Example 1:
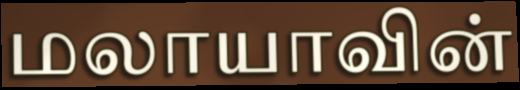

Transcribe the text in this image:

மலாயாவின்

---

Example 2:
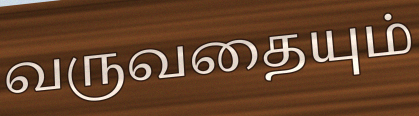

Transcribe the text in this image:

வருவதையும்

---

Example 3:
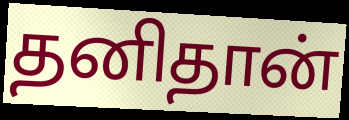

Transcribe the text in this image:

தனிதான்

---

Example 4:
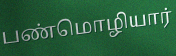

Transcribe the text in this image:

பண்மொழியார்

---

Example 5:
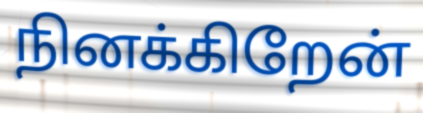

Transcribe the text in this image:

நினக்கிறேன்